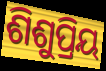
ଶିଶୁପ୍ରିୟ